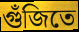
গুঁজিতে